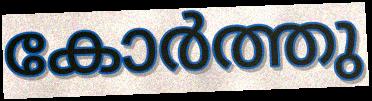
കോർത്തു